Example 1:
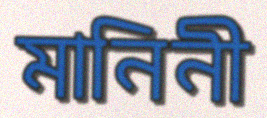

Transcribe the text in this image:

মানিনী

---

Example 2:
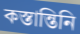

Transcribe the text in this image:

কস্তান্তিনি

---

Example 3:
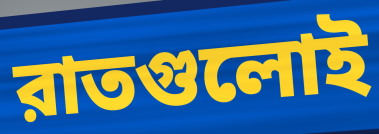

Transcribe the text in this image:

রাতগুলোই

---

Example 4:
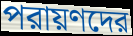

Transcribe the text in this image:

পরায়ণদের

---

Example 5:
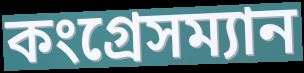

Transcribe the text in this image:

কংগ্রেসম্যান